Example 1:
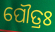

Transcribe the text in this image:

ପୌତ୍ରଃ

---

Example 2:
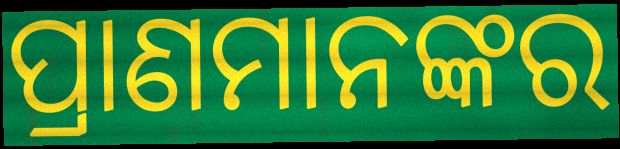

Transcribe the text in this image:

ପ୍ରାଣମାନଙ୍କର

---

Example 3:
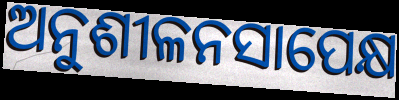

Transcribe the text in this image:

ଅନୁଶୀଳନସାପେକ୍ଷ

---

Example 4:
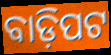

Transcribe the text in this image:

ବାଡ଼ିପଟ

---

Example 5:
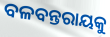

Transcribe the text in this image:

ବଳବନ୍ତରାୟକୁ